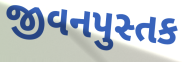
જીવનપુસ્તક